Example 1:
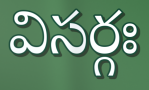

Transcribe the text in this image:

విసర్గః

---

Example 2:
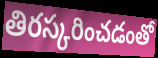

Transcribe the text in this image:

తిరస్కరించడంతో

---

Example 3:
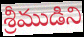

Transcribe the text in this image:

శ్రీముడిని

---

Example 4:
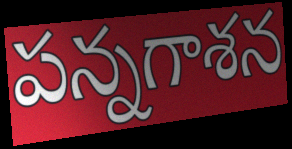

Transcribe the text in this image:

పన్నగాశన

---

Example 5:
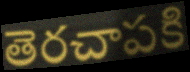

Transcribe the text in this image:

తెరచాపకి